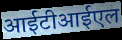
आईटीआईएल